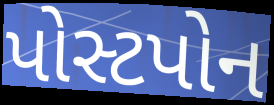
પોસ્ટપોન